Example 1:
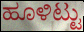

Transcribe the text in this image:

ಹೂಳಿಟ್ಟು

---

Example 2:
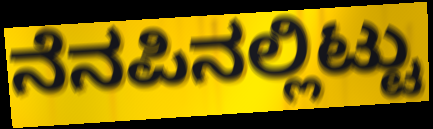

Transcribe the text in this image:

ನೆನಪಿನಲ್ಲಿಟ್ಟು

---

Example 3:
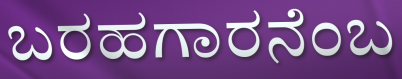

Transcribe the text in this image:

ಬರಹಗಾರನೆಂಬ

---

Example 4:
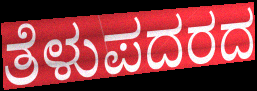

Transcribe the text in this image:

ತೆಳುಪದರದ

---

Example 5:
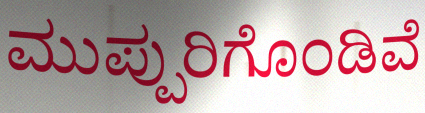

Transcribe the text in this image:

ಮುಪ್ಪುರಿಗೊಂಡಿವೆ